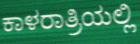
ಕಾಳರಾತ್ರಿಯಲ್ಲಿ